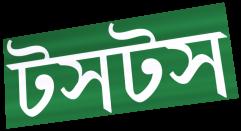
টসটস